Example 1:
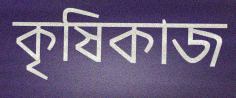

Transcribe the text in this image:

কৃষিকাজ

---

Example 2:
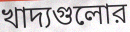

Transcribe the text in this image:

খাদ্যগুলোর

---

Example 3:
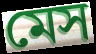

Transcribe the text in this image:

মেস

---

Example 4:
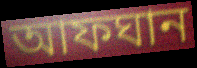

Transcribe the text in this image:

আফঘান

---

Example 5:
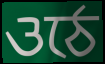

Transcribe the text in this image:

ওঠে